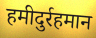
हमीदुर्रहमान